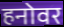
हनोवर